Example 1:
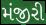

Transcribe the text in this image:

મંજીરી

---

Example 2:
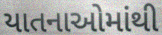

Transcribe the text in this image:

યાતનાઓમાંથી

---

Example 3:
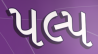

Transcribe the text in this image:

પલ્પ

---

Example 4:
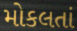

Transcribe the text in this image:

મોકલતાં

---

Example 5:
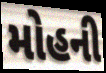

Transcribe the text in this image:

મોહની